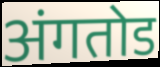
अंगतोड